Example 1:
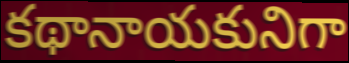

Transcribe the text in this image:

కథానాయకునిగా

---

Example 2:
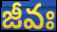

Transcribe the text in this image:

జీవః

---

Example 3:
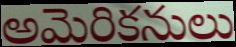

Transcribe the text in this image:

అమెరికనులు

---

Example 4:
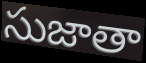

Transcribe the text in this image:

సుజాతా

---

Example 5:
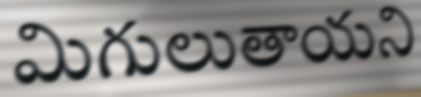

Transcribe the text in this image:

మిగులుతాయని